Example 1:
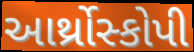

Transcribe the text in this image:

આર્થ્રોસ્કોપી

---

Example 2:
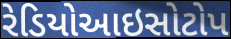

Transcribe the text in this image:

રેડિયોઆઇસોટોપ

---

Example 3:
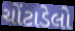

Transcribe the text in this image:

ચોંટાડેલો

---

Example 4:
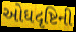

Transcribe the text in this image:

ઓઘદૃષ્ટિની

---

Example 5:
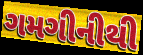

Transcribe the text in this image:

ગમગીનીથી